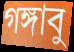
গঙ্গাবু